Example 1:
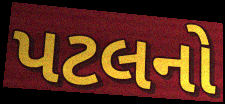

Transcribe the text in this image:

પટલનો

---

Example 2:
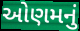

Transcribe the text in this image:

ઓણમનું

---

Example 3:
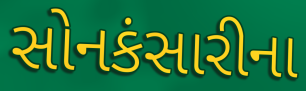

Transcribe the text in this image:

સોનકંસારીના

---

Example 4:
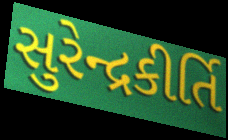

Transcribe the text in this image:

સુરેન્દ્રકીર્તિ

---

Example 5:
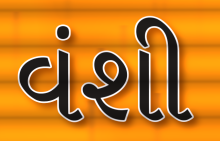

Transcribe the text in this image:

વંશી